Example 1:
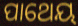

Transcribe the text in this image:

ପାଥେୟ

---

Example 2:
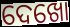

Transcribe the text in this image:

ଦେଖୋ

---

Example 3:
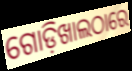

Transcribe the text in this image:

ଗୋଡ଼ିଖାଲଠାରେ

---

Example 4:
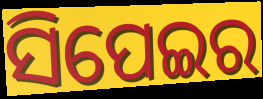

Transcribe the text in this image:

ସିପେଇର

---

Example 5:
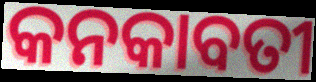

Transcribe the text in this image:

କନକାବତୀ